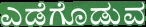
ಎಡೆಗೊಡುವ